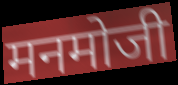
मनमोजी